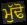
ਮੁੱਢੋ